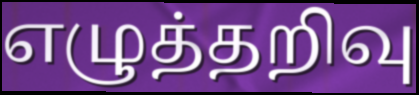
எழுத்தறிவு